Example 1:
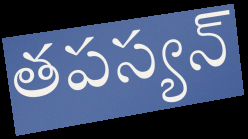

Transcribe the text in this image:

తపస్యన్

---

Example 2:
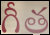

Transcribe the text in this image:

గీత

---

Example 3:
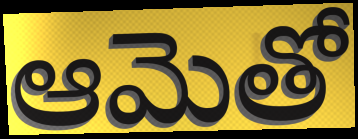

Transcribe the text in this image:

ఆమెతో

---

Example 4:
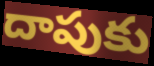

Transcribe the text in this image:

దాపుకు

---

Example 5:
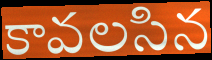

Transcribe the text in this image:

కావలసిన